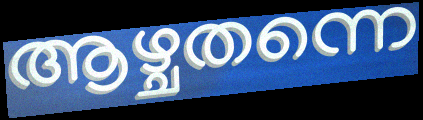
ആഴ്ചതന്നെ